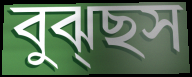
বুঝ্ছস